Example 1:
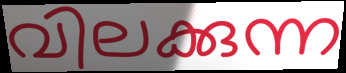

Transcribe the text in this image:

വിലക്കുന്ന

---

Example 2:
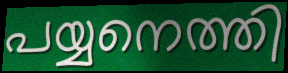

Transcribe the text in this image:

പയ്യനെത്തി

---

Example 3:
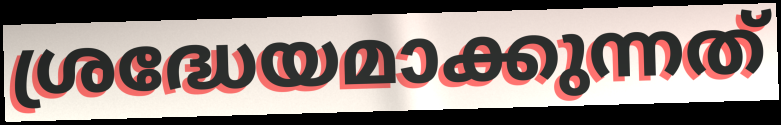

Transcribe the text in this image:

ശ്രദ്ധേയമാക്കുന്നത്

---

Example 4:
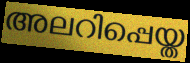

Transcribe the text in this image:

അലറിപ്പെയ്ത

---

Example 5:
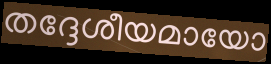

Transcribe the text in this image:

തദ്ദേശീയമായോ